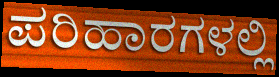
ಪರಿಹಾರಗಳಲ್ಲಿ